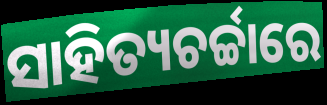
ସାହିତ୍ୟଚର୍ଚ୍ଚାରେ